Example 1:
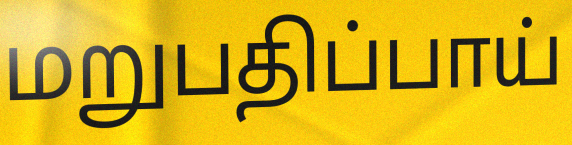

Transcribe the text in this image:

மறுபதிப்பாய்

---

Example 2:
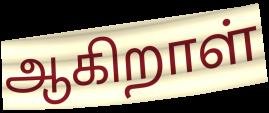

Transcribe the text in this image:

ஆகிறாள்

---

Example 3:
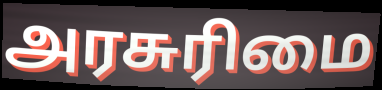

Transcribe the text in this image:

அரசுரிமை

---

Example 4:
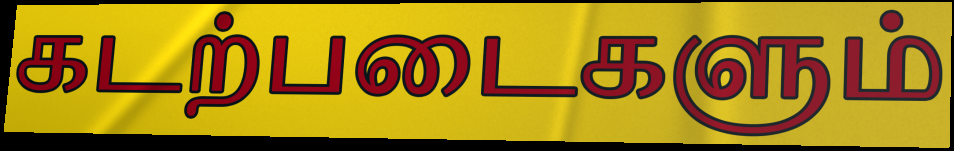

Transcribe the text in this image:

கடற்படைகளும்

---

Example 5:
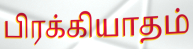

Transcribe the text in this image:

பிரக்கியாதம்